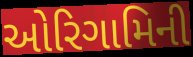
ઓરિગામિની